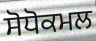
ਸੋਧੋਕਮਲ